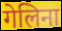
गेलिना